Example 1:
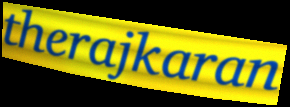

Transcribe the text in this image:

therajkaran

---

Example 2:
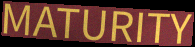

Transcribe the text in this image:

MATURITY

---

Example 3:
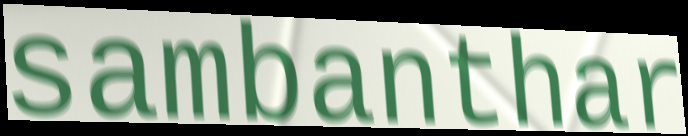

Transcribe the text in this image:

sambanthar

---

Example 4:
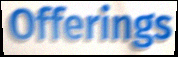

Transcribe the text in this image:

Offerings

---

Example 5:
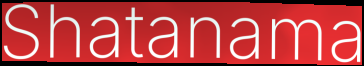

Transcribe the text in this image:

Shatanama